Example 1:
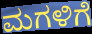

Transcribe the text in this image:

ಮಗಳಿಗೆ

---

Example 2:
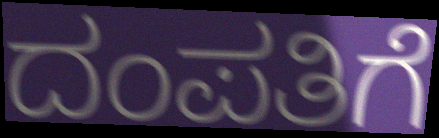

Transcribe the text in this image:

ದಂಪತಿಗೆ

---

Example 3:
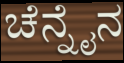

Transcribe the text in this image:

ಚೆನ್ನೈನ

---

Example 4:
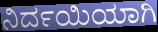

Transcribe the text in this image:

ನಿರ್ದಯಿಯಾಗಿ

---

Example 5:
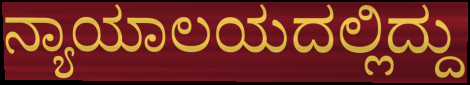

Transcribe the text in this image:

ನ್ಯಾಯಾಲಯದಲ್ಲಿದ್ದು